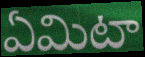
ఏమిటా